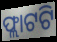
ଫ୍ଲାଟଟି